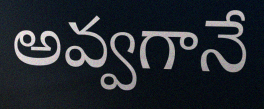
అవ్వగానే